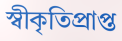
স্বীকৃতিপ্ৰাপ্ত